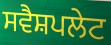
ਸਵੈਸ਼ਪਲੇਟ